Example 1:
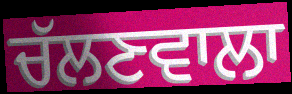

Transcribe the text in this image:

ਚੱਲਣਵਾਲਾ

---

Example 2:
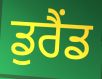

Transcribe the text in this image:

ਡੁਰੈਂਡ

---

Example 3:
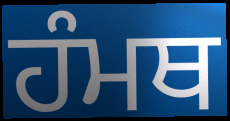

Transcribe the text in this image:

ਹੰਮਥ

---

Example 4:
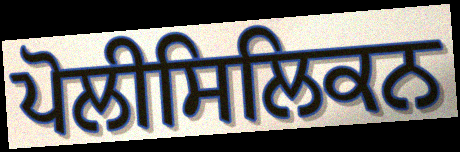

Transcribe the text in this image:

ਪੋਲੀਸਿਲਿਕਨ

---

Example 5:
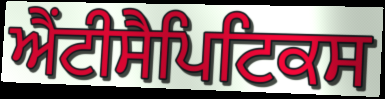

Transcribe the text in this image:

ਐਂਟੀਸੈਪਿਟਿਕਸ